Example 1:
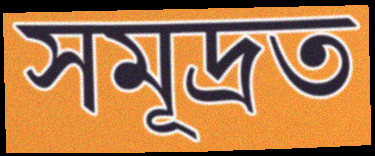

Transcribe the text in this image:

সমূদ্ৰত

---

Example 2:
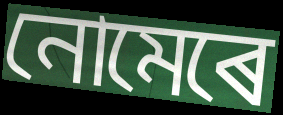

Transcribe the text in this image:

নোমেৰে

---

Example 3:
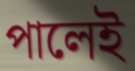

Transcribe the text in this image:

পালেই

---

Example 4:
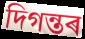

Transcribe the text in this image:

দিগন্তৰ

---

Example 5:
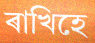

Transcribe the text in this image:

ৰাখিহে